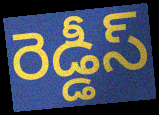
రెడ్డీస్